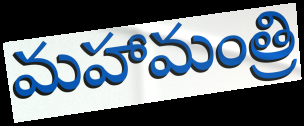
మహామంత్రి